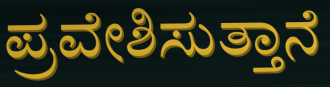
ಪ್ರವೇಶಿಸುತ್ತಾನೆ